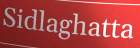
Sidlaghatta